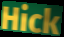
Hick